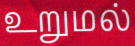
உறுமல்